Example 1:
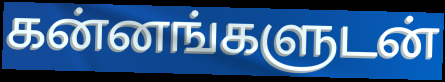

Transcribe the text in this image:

கன்னங்களுடன்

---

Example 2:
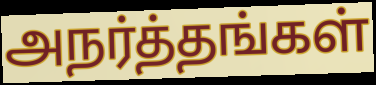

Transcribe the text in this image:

அநர்த்தங்கள்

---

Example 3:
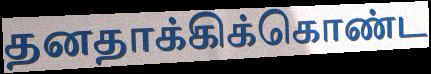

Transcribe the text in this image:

தனதாக்கிக்கொண்ட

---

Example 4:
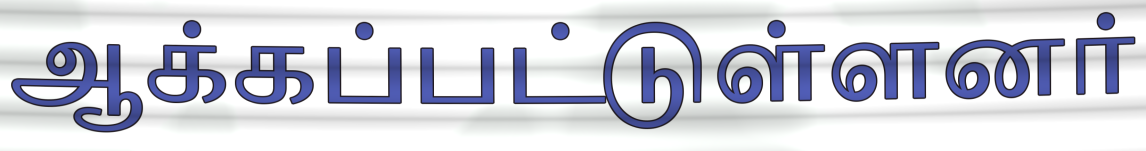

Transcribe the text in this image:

ஆக்கப்பட்டுள்ளனர்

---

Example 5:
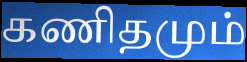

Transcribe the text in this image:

கணிதமும்